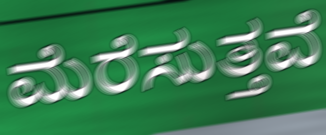
ಮೆರೆಸುತ್ತವೆ